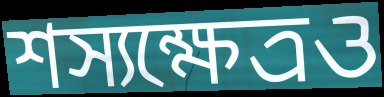
শস্যক্ষেত্রও